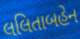
લલિતાબહેન